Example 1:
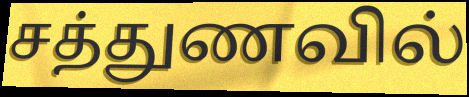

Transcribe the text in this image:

சத்துணவில்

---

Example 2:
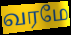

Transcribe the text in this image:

வரமே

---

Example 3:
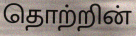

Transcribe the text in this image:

தொற்றின்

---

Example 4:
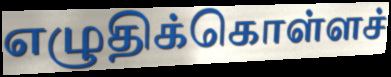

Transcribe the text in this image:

எழுதிக்கொள்ளச்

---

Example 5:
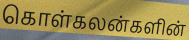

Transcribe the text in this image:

கொள்கலன்களின்